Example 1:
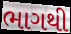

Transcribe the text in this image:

ભાગથી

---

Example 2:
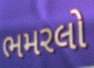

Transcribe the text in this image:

ભમરલો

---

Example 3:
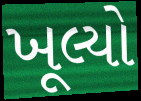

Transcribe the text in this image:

ખૂલ્યો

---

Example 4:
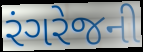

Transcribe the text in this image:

રંગરેજની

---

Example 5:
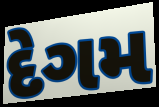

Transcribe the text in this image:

દેગમ